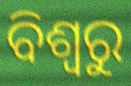
ବିଶ୍ଵରୁ